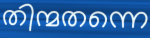
തിന്മതന്നെ